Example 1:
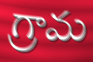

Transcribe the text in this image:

గ్రామ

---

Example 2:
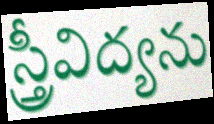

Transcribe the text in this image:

స్త్రీవిద్యను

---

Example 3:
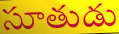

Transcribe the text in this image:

సూతుడు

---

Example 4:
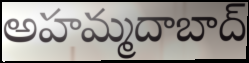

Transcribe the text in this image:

అహమ్మదాబాద్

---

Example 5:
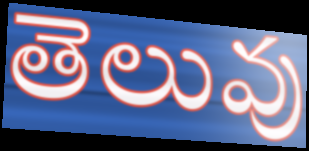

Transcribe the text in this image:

తెలువు